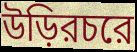
উড়িরচরে